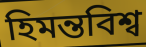
হিমন্তবিশ্ব